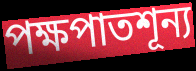
পক্ষপাতশূন্য